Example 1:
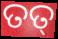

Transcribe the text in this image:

ତତ୍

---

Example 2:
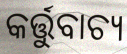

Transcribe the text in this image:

କର୍ତ୍ତୁବାଚ୍ୟ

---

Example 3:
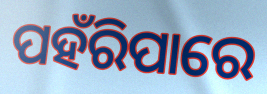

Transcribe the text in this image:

ପହଁରିପାରେ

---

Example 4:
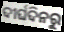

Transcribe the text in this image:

ଦୀର୍ଘଦିନରୁ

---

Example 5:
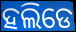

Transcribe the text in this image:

ହଲିଡେ